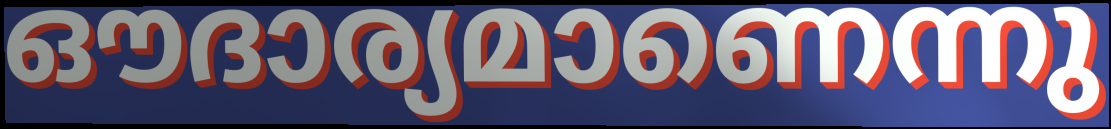
ഔദാര്യമാണെന്നു